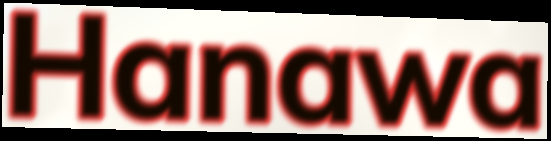
Hanawa